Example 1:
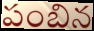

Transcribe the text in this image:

పంబిన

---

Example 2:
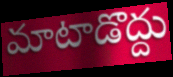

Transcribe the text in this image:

మాటాడొద్దు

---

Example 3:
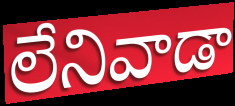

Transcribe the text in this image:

లేనివాడా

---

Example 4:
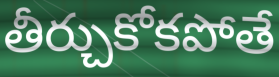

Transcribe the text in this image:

తీర్చుకోకపోతే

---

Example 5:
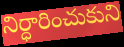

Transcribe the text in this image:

నిర్ధారించుకుని